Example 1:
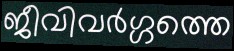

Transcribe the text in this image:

ജീവിവർഗ്ഗത്തെ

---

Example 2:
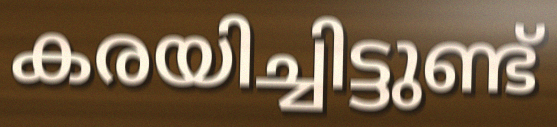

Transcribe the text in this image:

കരയിച്ചിട്ടുണ്ട്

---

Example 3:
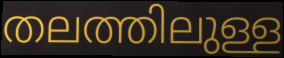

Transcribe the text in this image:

തലത്തിലുള്ള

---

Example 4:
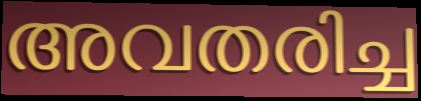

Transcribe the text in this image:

അവതരിച്ച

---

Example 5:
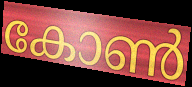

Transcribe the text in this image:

കോൺ